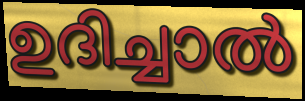
ഉദിച്ചാൽ